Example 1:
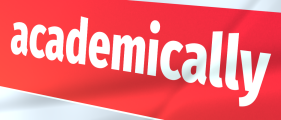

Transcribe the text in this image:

academically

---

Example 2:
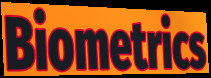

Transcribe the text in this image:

Biometrics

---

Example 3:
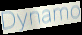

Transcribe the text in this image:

Dynamo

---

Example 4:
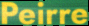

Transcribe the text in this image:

Peirre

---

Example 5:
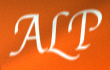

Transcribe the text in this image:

ALP